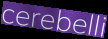
cerebelli